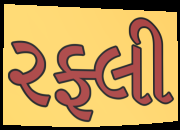
રફ્લી